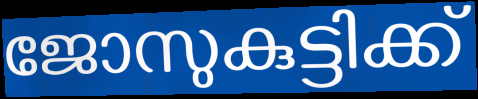
ജോസുകുട്ടിക്ക്